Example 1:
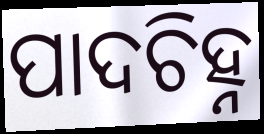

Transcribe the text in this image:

ପାଦଚିହ୍ନ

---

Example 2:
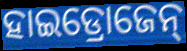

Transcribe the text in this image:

ହାଇଡ୍ରୋଜେନ୍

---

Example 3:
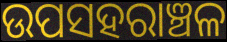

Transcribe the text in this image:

ଉପସହରାଞ୍ଚଳ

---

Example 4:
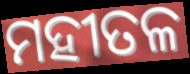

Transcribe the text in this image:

ମହୀତଳ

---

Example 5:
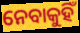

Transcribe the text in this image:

ନେବାକୁହିଁ